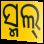
ସ୍ମଲ୍